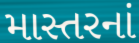
માસ્તરનાં